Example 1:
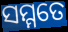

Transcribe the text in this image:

ସମ୍ମତେ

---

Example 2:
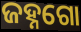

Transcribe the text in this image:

ଜହ୍ନଗୋ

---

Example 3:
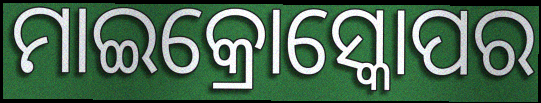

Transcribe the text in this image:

ମାଇକ୍ରୋସ୍କୋପର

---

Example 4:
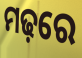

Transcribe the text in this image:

ମଢ଼ରେ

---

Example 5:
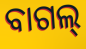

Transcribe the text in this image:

ବାଗଲ୍